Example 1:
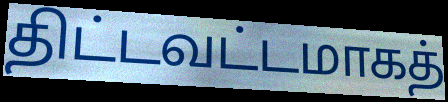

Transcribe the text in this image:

திட்டவட்டமாகத்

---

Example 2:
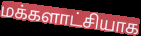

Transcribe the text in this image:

மக்களாட்சியாக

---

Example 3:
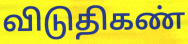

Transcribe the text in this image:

விடுதிகண்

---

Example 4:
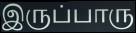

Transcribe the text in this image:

இருப்பாரு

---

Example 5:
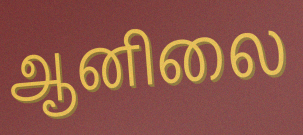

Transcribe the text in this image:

ஆனிலை